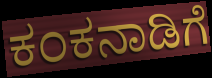
ಕಂಕನಾಡಿಗೆ